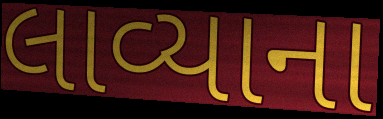
લાવ્યાના